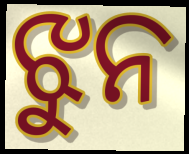
ଝୁନ